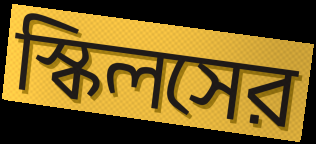
স্কিলসের